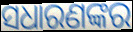
ସଧାରଣଙ୍କର